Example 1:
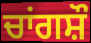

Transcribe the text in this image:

ਚਾਂਗਸ਼ੌ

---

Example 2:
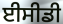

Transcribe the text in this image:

ਈਸੀਡੀ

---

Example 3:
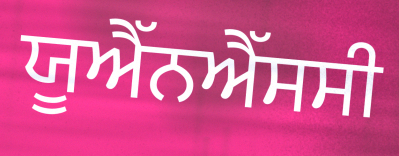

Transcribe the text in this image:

ਯੂਐੱਨਐੱਸਸੀ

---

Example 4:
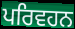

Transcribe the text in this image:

ਪਰਿਵਹਨ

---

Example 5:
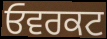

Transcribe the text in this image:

ਓਵਰਕਟ